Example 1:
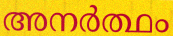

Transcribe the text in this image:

അനർത്ഥം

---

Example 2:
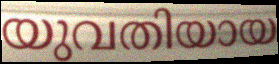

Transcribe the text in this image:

യുവതിയായ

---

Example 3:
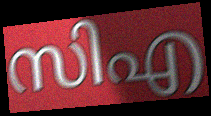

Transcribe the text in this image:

സിഎ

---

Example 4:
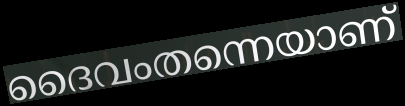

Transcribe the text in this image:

ദൈവംതന്നെയാണ്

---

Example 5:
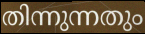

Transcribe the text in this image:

തിന്നുന്നതും